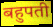
बहुपती